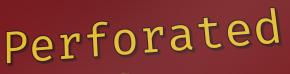
Perforated